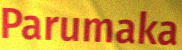
Parumaka